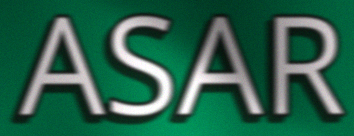
ASAR